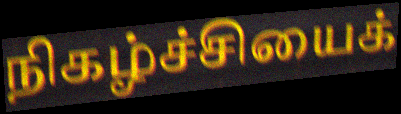
நிகழ்ச்சியைக்